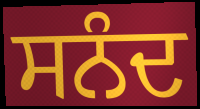
ਸਨੰਦ